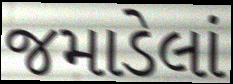
જમાડેલાં